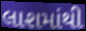
લાશમાંથી